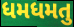
ધમધમતુ